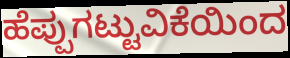
ಹೆಪ್ಪುಗಟ್ಟುವಿಕೆಯಿಂದ